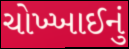
ચોખ્ખાઈનું